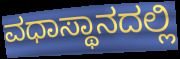
ವಧಾಸ್ಥಾನದಲ್ಲಿ